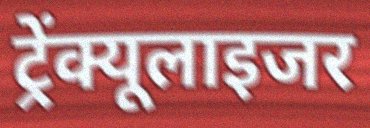
ट्रेंक्यूलाइजर